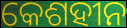
କେଶହୀନ